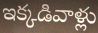
ఇక్కడివాళ్లు